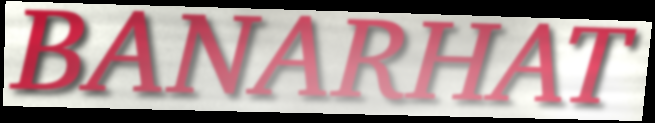
BANARHAT